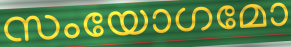
സംയോഗമോ